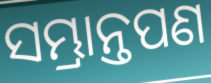
ସମ୍ଭ୍ରାନ୍ତପଣ